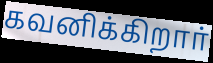
கவனிக்கிறார்